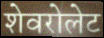
शेवरोलेट